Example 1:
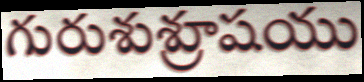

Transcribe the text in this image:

గురుశుశ్రూషయు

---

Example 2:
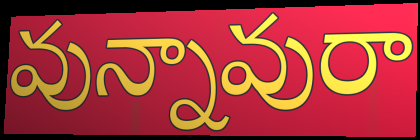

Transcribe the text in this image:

వున్నావురా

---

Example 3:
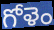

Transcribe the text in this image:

గోళెం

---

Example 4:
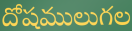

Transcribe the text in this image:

దోషములుగల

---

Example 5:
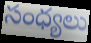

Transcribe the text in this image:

సంధ్యలు